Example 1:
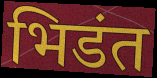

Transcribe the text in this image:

भिडंत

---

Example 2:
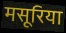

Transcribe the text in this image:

मसूरिया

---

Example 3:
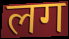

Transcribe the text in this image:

लग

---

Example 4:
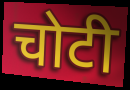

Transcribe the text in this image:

चोटी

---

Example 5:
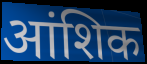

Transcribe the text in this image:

आंशिक